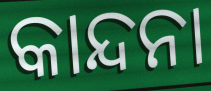
କାନ୍ଦନା